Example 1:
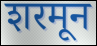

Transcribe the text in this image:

शरमून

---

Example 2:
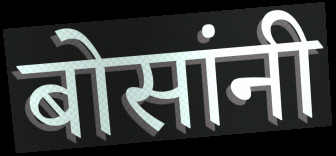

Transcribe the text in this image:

बोसांनी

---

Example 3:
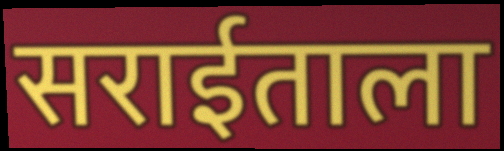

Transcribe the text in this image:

सराईताला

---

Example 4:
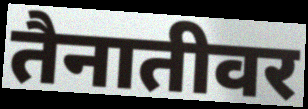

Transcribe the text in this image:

तैनातीवर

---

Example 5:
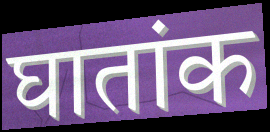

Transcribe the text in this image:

घातांक